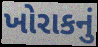
ખોરાકનું